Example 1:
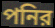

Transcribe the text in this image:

পনির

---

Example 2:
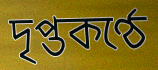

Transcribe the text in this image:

দৃপ্তকণ্ঠে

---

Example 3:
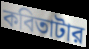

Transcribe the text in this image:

কবিতাটার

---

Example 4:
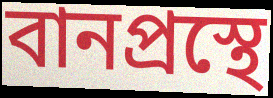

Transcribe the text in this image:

বানপ্রস্থে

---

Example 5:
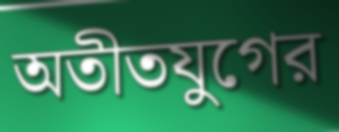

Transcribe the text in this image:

অতীতযুগের